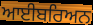
ਆਈਬਰਿਅਨ